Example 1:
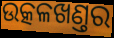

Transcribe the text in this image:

ଉତ୍କଳଖଣ୍ତର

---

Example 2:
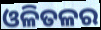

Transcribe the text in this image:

ଓଳିତଳର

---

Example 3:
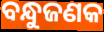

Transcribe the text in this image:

ବନ୍ଧୁଜଣକ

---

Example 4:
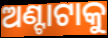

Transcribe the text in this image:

ଅଣ୍ଟାଟାକୁ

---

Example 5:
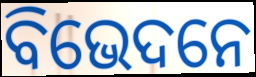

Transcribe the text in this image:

ବିଭେଦନେ